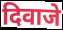
दिवाजे